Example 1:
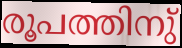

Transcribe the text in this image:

രൂപത്തിനു്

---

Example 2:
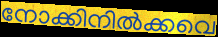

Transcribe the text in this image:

നോക്കിനിൽക്കവെ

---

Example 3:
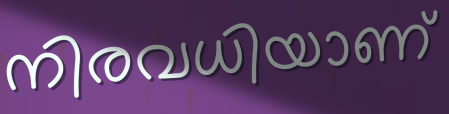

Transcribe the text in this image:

നിരവധിയാണ്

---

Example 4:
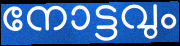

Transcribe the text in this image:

നോട്ടവും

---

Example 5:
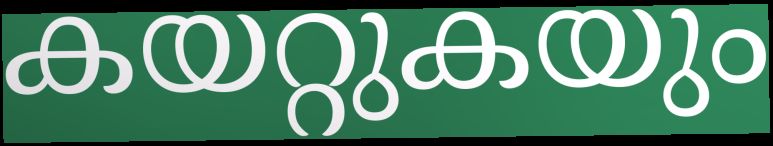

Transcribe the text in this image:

കയറ്റുകയും